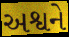
અશ્વને